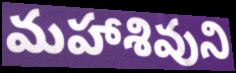
మహాశివుని